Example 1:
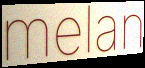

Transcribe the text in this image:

melan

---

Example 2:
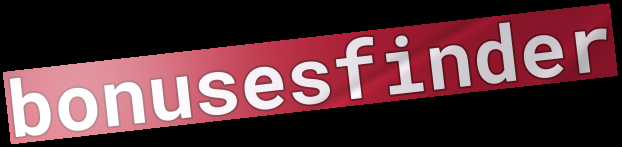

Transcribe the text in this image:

bonusesfinder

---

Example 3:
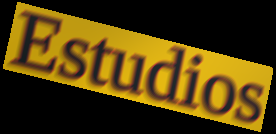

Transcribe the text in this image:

Estudios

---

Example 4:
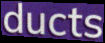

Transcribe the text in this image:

ducts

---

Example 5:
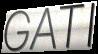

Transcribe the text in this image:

GATI